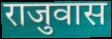
राजुवास